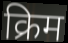
क्रिम